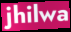
jhilwa